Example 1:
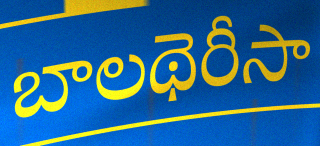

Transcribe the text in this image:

బాలథెరీసా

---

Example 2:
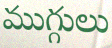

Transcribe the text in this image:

ముగ్గులు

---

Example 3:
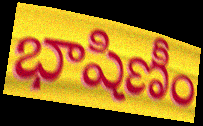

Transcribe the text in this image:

భాషిణీం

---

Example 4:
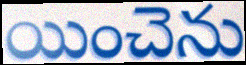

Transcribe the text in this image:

యించెను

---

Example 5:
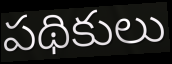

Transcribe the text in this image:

పథికులు